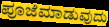
ಪೂಜೆಮಾಡುವುದು